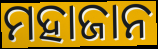
ମହାଜାନ